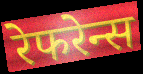
रेफरेन्स